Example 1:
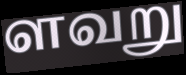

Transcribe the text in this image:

ளவறு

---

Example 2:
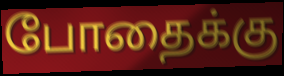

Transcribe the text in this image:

போதைக்கு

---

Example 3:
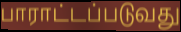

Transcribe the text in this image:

பாராட்டப்படுவது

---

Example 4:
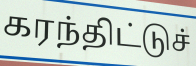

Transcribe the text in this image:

கரந்திட்டுச்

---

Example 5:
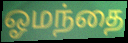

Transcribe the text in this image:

ஓமந்தை